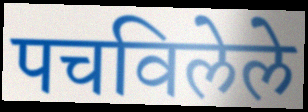
पचविलेले